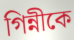
গিন্নীকে